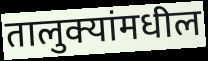
तालुक्यांमधील